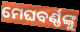
ମେଘବର୍ଣ୍ଣଙ୍କୁ